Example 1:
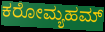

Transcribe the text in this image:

ಕರೋಮ್ಯಹಮ್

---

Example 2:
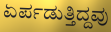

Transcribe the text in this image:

ಏರ್ಪಡುತ್ತಿದ್ದವು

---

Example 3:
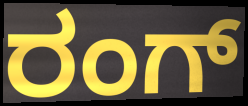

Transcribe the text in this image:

ರಂಗ್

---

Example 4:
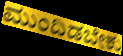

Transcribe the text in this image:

ಮುಂದಿಡಬೇಕು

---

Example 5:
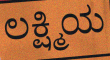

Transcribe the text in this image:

ಲಕ್ಷ್ಮಿಯ